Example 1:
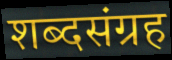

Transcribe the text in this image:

शब्दसंग्रह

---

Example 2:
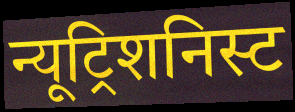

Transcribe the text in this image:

न्‍यूट्रिशनिस्‍ट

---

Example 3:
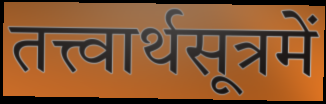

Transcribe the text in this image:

तत्त्वार्थसूत्रमें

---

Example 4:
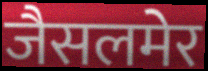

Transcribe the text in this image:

जैसलमेर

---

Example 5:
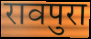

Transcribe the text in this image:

रावपुरा